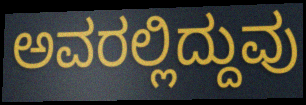
ಅವರಲ್ಲಿದ್ದುವು